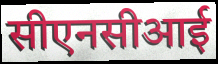
सीएनसीआई